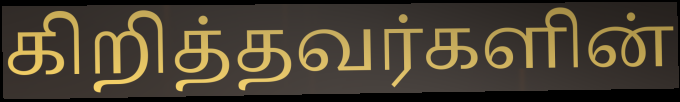
கிறித்தவர்களின்